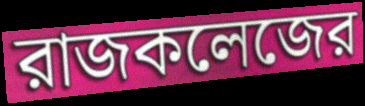
রাজকলেজের